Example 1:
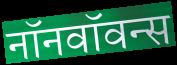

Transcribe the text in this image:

नॉनवॉवन्स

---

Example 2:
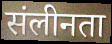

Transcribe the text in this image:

संलीनता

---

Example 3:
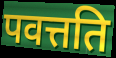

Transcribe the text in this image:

पवत्तति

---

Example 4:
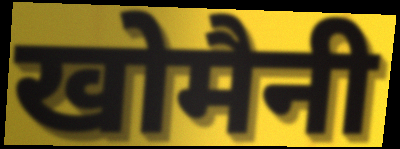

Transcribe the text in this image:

खोमैनी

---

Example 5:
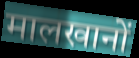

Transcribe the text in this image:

मालखानों